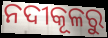
ନଦୀକୂଳରୁ